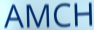
AMCH